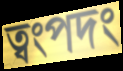
ত্বংপদং